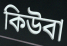
কিউবা